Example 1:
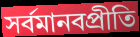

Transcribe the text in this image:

সর্বমানবপ্রীতি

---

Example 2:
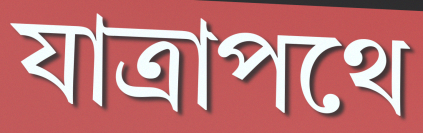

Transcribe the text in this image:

যাত্রাপথে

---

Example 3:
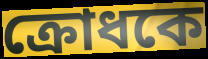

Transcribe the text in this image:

ক্রোধকে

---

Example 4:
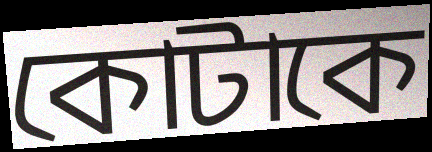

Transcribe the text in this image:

কোটাকে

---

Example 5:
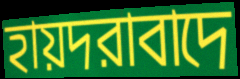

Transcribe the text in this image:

হায়দরাবাদে